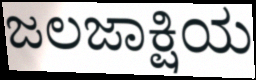
ಜಲಜಾಕ್ಷಿಯ